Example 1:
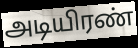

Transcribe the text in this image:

அடியிரண்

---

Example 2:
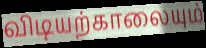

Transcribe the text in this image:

விடியற்காலையும்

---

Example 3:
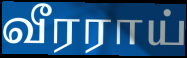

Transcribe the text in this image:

வீரராய்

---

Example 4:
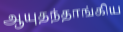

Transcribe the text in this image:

ஆயுதந்தாங்கிய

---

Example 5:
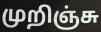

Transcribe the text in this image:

முறிஞ்சு